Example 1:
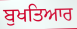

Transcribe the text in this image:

ਬੁਖਤਿਆਰ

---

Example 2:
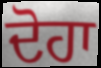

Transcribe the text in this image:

ਦੋਹਾ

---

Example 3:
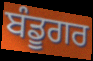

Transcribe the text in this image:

ਬੰਡੂਗਰ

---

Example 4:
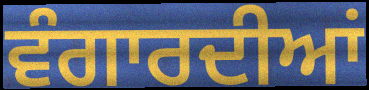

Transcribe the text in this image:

ਵੰਗਾਰਦੀਆਂ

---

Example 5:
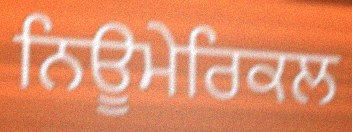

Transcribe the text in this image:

ਨਿਊਮੇਰਿਕਲ